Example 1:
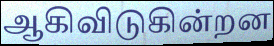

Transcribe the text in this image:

ஆகிவிடுகின்றன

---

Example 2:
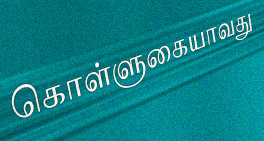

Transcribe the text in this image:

கொள்ளுகையாவது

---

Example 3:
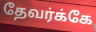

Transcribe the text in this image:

தேவர்க்கே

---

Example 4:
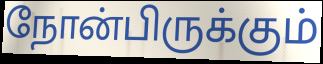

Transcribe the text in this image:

நோன்பிருக்கும்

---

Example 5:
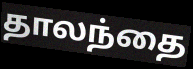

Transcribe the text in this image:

தாலந்தை